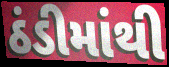
ઠંડીમાંથી